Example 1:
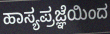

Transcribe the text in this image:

ಹಾಸ್ಯಪ್ರಜ್ಞೆಯಿಂದ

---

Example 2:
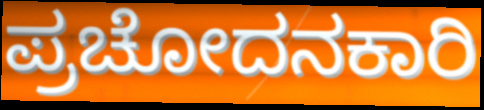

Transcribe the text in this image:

ಪ್ರಚೋದನಕಾರಿ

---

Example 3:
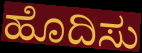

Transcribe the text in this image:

ಹೊದಿಸು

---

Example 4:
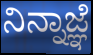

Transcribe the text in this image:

ನಿನ್ನಾಜ್ಞೆ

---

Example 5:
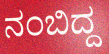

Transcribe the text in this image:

ನಂಬಿದ್ದ